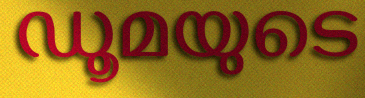
ഡൂമയുടെ